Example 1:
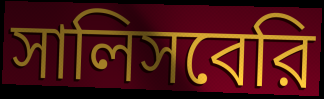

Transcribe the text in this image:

সালিসবেরি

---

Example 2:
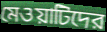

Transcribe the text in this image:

মেওয়াটিদের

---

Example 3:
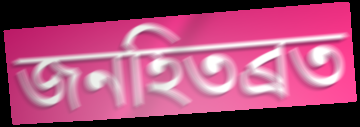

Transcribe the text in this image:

জনহিতব্রত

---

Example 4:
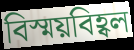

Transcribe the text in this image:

বিস্ময়বিহ্বল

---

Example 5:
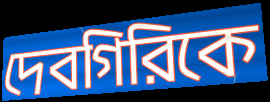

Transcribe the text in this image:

দেবগিরিকে